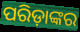
ପରିଡ଼ାଙ୍କର